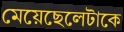
মেয়েছেলেটাকে